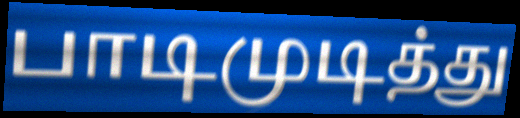
பாடிமுடித்து